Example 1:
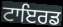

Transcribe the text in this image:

ਟਾਇਰਡ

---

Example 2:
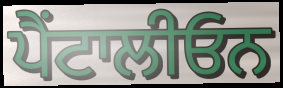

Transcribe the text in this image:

ਪੈਂਟਾਲੀਓਨ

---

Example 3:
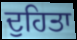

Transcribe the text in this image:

ਦੁਹਿਤਾ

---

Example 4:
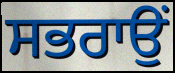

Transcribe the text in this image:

ਸਭਰਾਉਂ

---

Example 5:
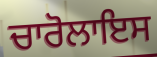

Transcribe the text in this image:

ਚਾਰੋਲਾਇਸ